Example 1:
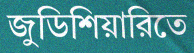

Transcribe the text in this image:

জুডিশিয়ারিতে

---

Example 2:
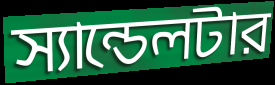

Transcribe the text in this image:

স্যান্ডেলটার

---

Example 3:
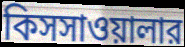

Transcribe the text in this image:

কিসসাওয়ালার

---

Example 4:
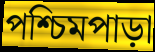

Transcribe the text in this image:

পশ্চিমপাড়া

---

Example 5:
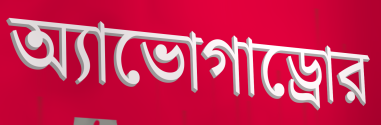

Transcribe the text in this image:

অ্যাভোগাড্রোর